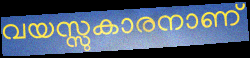
വയസ്സുകാരനാണ്